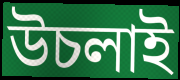
উচলাই